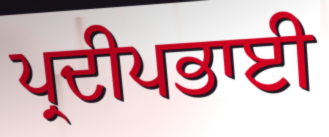
ਪ੍ਰਦੀਪਭਾਈ